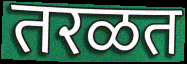
तरळत